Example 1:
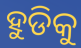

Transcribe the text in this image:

ହୁଡିକୁ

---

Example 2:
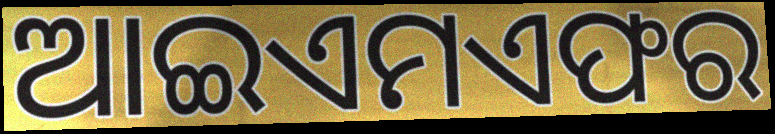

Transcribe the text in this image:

ଆଇଏମଏଫର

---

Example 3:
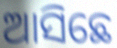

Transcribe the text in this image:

ଆସିଛେ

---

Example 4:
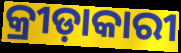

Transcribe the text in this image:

କ୍ରୀଡ଼ାକାରୀ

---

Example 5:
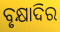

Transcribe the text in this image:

ବୃକ୍ଷାଦିର